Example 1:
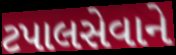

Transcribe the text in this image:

ટપાલસેવાને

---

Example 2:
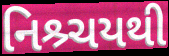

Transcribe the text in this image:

નિશ્ર્ચયથી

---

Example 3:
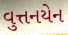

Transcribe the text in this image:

વુત્તનયેન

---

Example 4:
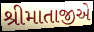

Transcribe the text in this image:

શ્રીમાતાજીએ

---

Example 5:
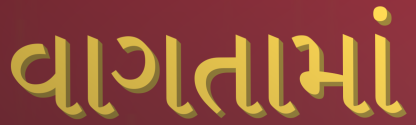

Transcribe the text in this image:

વાગતામાં